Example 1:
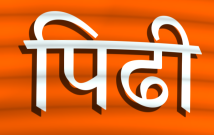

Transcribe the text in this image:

पिढी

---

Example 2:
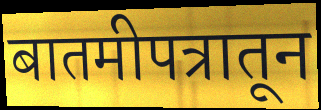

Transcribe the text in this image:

बातमीपत्रातून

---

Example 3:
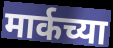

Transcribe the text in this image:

मार्कच्या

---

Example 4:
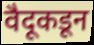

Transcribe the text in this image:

वैदूकडून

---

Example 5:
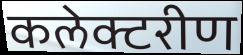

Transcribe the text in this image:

कलेक्टरीण